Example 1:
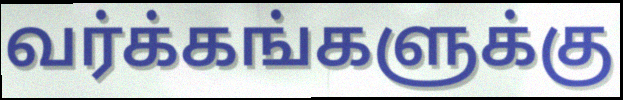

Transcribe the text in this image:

வர்க்கங்களுக்கு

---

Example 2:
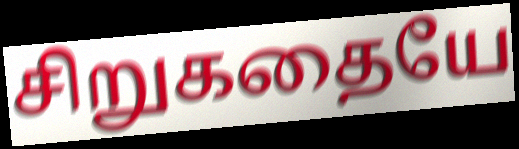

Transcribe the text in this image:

சிறுகதையே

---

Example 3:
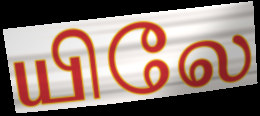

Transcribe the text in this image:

யிலே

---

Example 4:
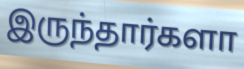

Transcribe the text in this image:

இருந்தார்களா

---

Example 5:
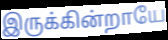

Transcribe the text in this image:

இருக்கின்றாயே